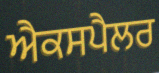
ਐਕਸਪੈਲਰ